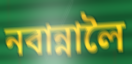
নবান্নালৈ